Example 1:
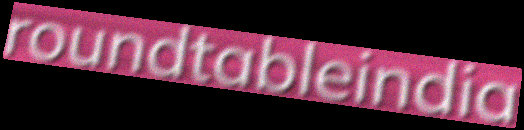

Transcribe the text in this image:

roundtableindia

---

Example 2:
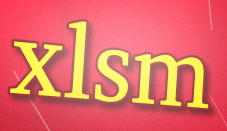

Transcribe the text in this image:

xlsm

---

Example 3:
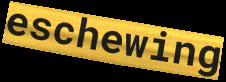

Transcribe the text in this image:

eschewing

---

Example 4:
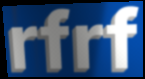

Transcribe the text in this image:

rfrf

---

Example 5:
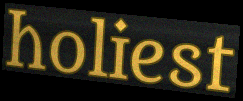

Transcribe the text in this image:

holiest